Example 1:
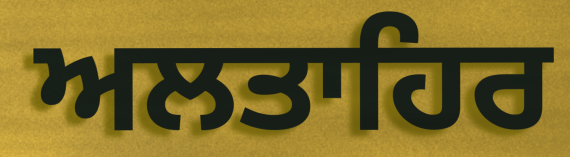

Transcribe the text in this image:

ਅਲਤਾਹਿਰ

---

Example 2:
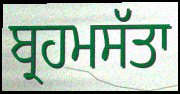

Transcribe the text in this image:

ਬ੍ਰਹਮਸੱਤਾ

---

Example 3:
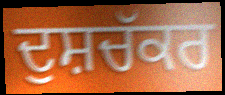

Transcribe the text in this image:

ਦੁਸ਼ਚੱਕਰ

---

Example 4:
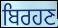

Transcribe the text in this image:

ਬਿਰਹਣ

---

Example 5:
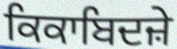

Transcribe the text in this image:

ਕਿਕਾਬਿਦਜ਼ੇ